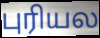
புரியல